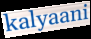
kalyaani